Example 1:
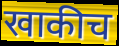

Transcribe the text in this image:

खाकीच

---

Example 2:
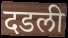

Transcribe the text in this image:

दडली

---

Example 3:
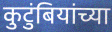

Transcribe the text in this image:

कुटुंबियांच्या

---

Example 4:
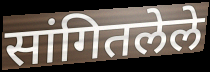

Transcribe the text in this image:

सांगितलेले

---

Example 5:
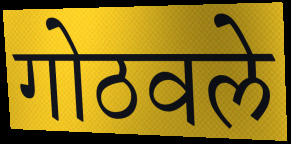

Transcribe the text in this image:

गोठवले